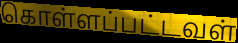
கொள்ளப்பட்டவள்